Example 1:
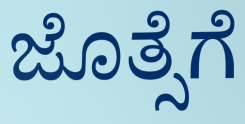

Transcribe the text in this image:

ಜೊತ್ಸೆಗೆ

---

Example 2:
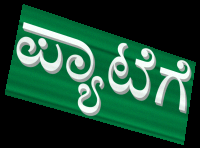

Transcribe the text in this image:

ಪ್ಯಾಟೆಗೆ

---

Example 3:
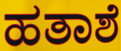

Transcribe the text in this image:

ಹತಾಶೆ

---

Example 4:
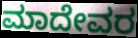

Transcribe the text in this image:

ಮಾದೇವರ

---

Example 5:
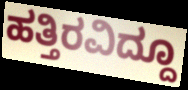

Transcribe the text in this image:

ಹತ್ತಿರವಿದ್ದೂ